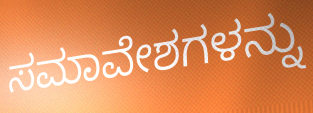
ಸಮಾವೇಶಗಳನ್ನು